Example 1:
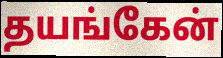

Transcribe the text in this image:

தயங்கேன்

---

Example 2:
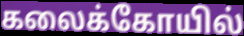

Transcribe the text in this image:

கலைக்கோயில்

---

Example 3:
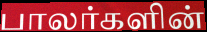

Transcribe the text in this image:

பாலர்களின்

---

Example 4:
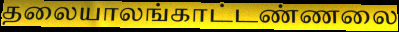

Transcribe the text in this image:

தலையாலங்காட்டண்ணலை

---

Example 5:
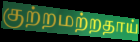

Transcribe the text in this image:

குற்றமற்றதாய்